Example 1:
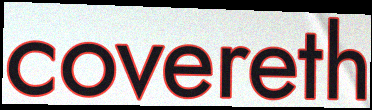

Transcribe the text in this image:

covereth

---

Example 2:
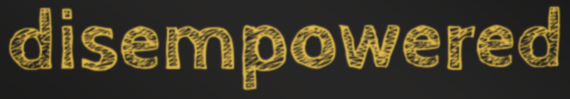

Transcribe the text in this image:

disempowered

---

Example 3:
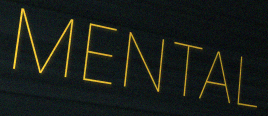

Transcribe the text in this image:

MENTAL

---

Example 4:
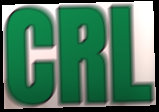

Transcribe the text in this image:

CRL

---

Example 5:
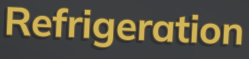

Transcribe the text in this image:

Refrigeration